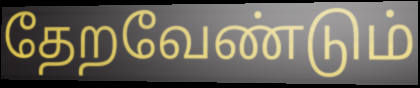
தேறவேண்டும்